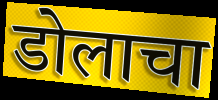
डोलाचा